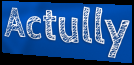
Actully